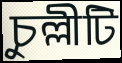
চুল্লীটি